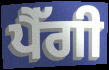
ਪੈੱਗੀ